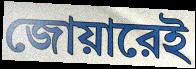
জোয়ারেই